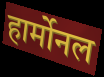
हार्मोनल